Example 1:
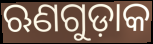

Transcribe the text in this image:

ଋଣଗୁଡ଼ାକ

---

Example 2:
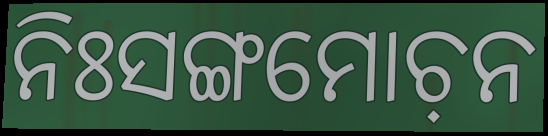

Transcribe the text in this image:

ନିଃସଙ୍ଗମୋଚ଼ନ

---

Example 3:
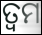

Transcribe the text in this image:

ତ୍ୱମ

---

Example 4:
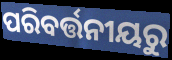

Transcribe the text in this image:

ପରିବର୍ତ୍ତନୀୟରୁ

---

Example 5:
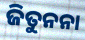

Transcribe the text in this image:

ଜିତୁନନା